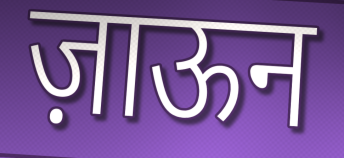
ज़ाऊन